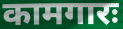
कामगारः